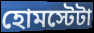
হোমস্টেটা